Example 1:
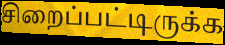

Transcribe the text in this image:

சிறைப்பட்டிருக்க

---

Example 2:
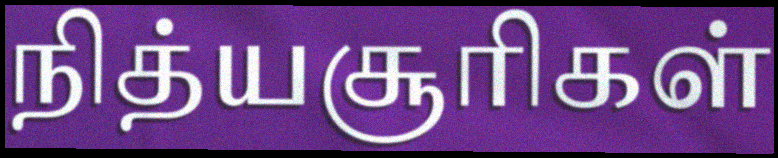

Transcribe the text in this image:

நித்யசூரிகள்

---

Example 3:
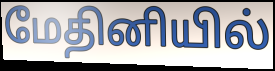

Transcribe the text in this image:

மேதினியில்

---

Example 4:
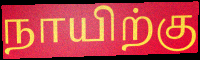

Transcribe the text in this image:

நாயிற்கு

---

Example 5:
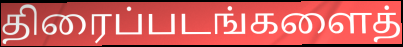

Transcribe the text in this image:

திரைப்படங்களைத்